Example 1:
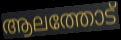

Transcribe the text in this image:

ആലത്തോട്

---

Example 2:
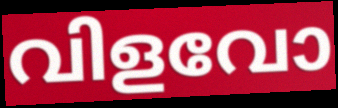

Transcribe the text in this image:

വിളവോ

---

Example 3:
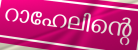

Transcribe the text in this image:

റാഹേലിന്റെ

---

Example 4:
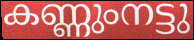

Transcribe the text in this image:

കണ്ണുംനട്ടു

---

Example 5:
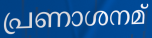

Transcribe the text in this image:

പ്രണാശനമ്